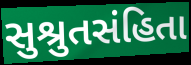
સુશ્રુતસંહિતા